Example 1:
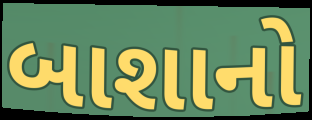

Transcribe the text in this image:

બાશાનો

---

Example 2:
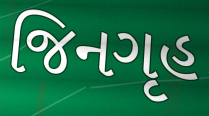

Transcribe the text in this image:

જિનગૃહ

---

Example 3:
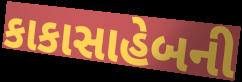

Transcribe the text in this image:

કાકાસાહેબની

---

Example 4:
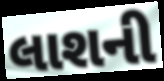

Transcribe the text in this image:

લાશની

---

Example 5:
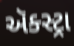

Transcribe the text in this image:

ઍક્સ્ટ્રા